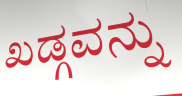
ಖಡ್ಗವನ್ನು